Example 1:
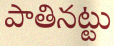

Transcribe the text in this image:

పాతినట్టు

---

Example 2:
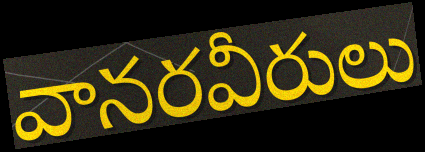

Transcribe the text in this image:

వానరవీరులు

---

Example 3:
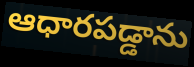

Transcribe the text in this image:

ఆధారపడ్డాను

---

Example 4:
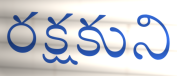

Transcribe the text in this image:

రక్షకుని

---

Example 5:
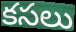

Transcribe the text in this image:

కసలు